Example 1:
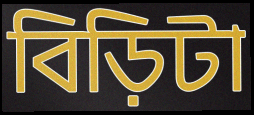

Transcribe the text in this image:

বিড়িটা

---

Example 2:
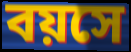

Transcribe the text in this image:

বয়সে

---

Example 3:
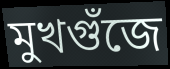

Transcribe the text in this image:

মুখগুঁজে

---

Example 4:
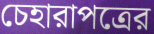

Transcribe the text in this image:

চেহারাপত্রের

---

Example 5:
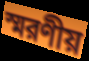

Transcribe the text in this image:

স্মরণীয়